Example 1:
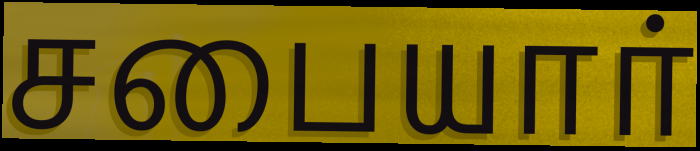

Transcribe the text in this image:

சபையார்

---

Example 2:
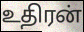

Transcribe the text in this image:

உதிரன்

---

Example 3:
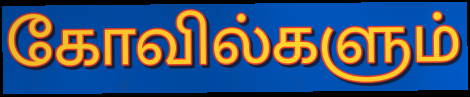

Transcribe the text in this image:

கோவில்களும்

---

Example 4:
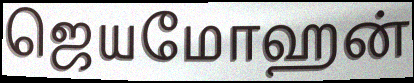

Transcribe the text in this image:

ஜெயமோஹன்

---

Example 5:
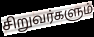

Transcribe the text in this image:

சிறுவர்களும்